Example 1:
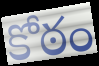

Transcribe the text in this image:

కోఠం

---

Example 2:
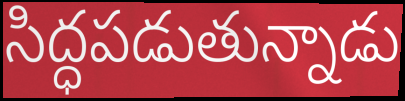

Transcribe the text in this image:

సిద్ధపడుతున్నాడు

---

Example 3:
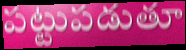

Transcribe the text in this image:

పట్టుపడుతూ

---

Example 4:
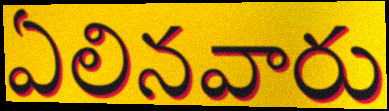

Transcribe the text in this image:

ఏలినవారు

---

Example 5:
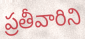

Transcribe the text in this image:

ప్రతీవారిని